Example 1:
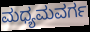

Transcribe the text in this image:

ಮಧ್ಯಮವರ್ಗ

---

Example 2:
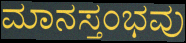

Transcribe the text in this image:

ಮಾನಸ್ತಂಭವು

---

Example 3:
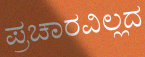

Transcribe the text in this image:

ಪ್ರಚಾರವಿಲ್ಲದ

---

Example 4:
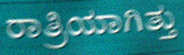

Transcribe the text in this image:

ರಾತ್ರಿಯಾಗಿತ್ತು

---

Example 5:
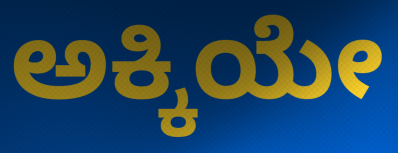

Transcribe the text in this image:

ಅಕ್ಕಿಯೇ